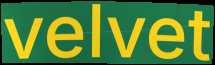
velvet